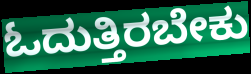
ಓದುತ್ತಿರಬೇಕು